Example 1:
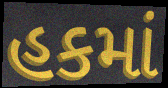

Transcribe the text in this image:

હકમાં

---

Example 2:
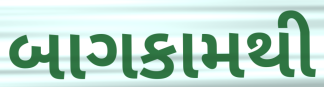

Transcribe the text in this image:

બાગકામથી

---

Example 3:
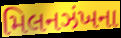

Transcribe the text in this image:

મિલનઝંખના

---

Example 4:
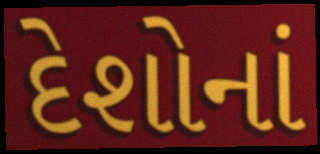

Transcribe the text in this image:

દેશોનાં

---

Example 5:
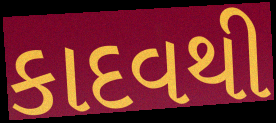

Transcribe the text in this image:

કાદવથી